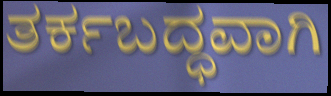
ತರ್ಕಬದ್ಧವಾಗಿ